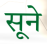
सूने